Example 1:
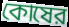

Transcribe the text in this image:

কোষের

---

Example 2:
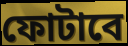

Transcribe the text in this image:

ফোটাবে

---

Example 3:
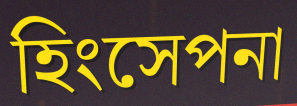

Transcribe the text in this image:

হিংসেপনা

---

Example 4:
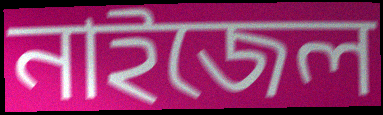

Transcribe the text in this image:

নাইজেল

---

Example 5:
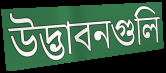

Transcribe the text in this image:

উদ্ভাবনগুলি